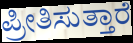
ಪ್ರೀತಿಸುತ್ತಾರೆ